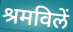
श्रमविलें